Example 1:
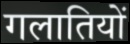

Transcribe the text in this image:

गलातियों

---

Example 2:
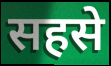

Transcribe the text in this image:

सहसे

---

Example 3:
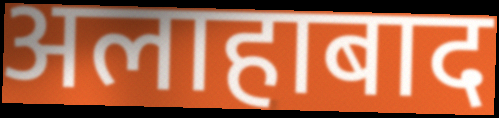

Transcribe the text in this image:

अलाहाबाद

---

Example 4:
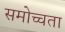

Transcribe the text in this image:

समोच्चता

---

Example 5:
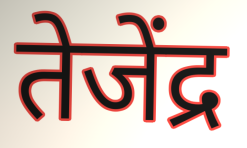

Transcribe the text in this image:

तेजेंद्र